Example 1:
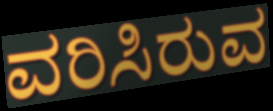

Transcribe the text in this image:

ವರಿಸಿರುವ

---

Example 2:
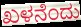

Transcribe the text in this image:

ಖಳನೆಂದು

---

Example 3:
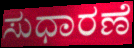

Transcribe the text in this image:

ಸುಧಾರಣೆ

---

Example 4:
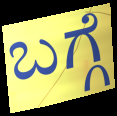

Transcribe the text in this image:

ಬಗ್ಗೆ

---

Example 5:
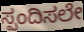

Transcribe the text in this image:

ಸ್ಪಂದಿಸಲೇ